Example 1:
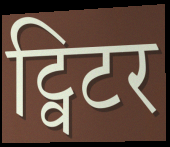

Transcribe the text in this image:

ट्विटर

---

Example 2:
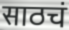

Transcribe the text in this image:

साठचं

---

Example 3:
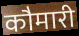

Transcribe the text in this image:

कौमारी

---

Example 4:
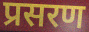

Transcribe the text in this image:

प्रसरण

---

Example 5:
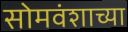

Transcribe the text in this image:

सोमवंशाच्या